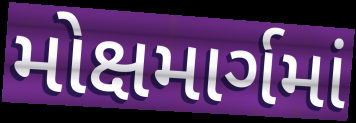
મોક્ષમાર્ગમાં